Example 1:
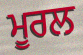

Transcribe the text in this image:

ਮੂਰਲ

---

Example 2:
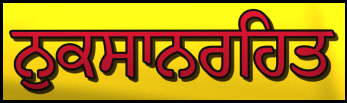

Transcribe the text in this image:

ਨੁਕਸਾਨਰਹਿਤ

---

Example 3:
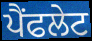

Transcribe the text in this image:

ਪੈਂਫਲੇਟ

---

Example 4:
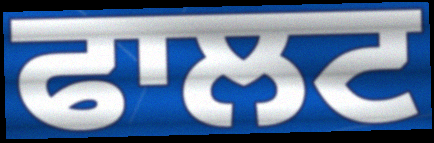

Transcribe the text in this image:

ਫਾਲਟ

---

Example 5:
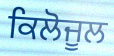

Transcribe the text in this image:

ਕਿਲੋਜੂਲ